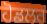
ਹੋਡਲਰ